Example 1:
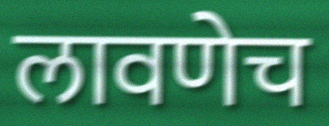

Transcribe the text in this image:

लावणेच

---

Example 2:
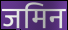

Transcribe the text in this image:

जमिन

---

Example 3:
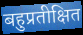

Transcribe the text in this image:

बहुप्रतीक्षित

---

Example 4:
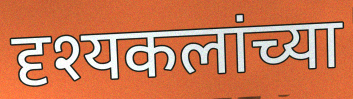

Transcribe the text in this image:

दृश्यकलांच्या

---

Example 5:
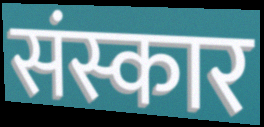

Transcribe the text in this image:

संस्‍कार